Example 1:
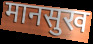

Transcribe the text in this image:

मानसुख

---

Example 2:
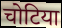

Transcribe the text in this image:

चोटिया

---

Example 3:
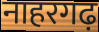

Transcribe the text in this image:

नाहरगढ़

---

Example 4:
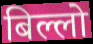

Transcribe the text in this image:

बिल्लो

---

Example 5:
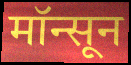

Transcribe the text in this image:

मॉन्सून